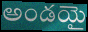
అండయై